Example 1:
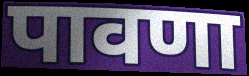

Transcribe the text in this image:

पावणा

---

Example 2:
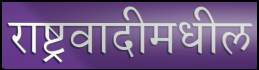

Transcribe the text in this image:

राष्ट्रवादीमधील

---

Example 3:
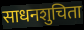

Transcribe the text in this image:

साधनशुचिता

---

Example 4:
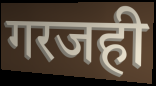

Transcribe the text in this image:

गरजही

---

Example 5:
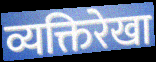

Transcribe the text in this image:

व्यक्तिरेखा